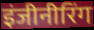
इंजीनीरिंग